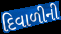
દિવાળીની